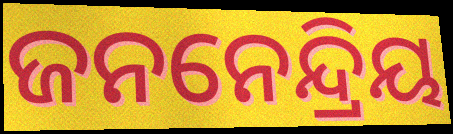
ଜନନେନ୍ଦ୍ରିୟ